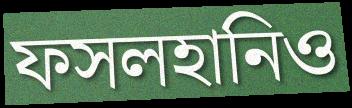
ফসলহানিও